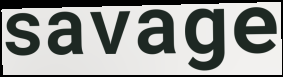
savage